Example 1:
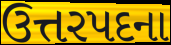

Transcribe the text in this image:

ઉત્તરપદના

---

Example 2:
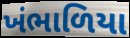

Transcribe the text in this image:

ખંભાળિયા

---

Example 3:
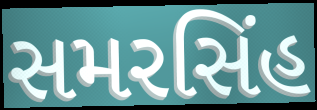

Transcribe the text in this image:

સમરસિંહ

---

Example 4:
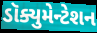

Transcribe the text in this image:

ડૉક્યુમેન્ટેશન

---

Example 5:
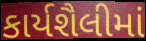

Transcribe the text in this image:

કાર્યશૈલીમાં